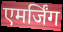
एमर्जिंग